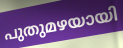
പുതുമഴയായി